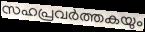
സഹപ്രവർത്തകയും